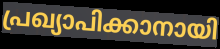
പ്രഖ്യാപിക്കാനായി